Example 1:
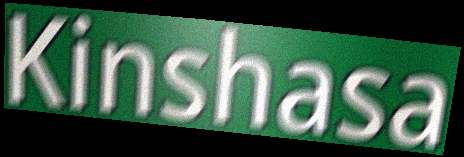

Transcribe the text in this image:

Kinshasa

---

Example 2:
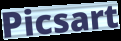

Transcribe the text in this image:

Picsart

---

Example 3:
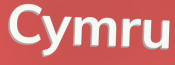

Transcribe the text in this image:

Cymru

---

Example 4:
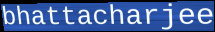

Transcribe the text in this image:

bhattacharjee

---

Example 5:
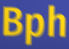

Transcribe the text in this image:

Bph